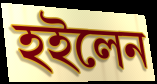
হইলেন